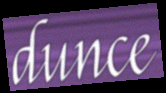
dunce